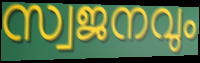
സ്വജനവും